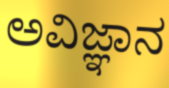
ಅವಿಜ್ಞಾನ